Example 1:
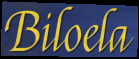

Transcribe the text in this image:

Biloela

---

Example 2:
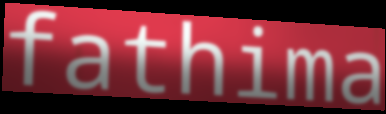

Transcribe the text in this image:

fathima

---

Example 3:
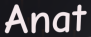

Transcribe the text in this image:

Anat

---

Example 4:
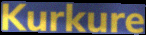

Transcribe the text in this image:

Kurkure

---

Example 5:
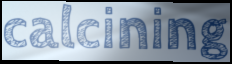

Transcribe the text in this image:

calcining